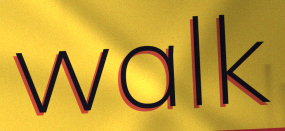
walk